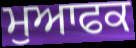
ਮੁਆਫਕ